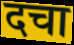
दचा